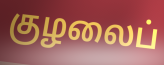
குழலைப்